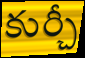
కుర్చీ